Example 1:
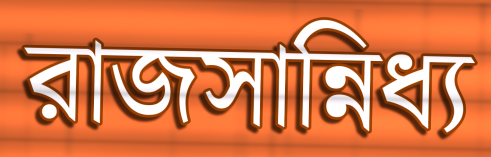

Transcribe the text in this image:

রাজসান্নিধ্য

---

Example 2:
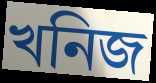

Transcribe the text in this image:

খনিজ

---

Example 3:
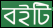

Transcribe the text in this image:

বইটি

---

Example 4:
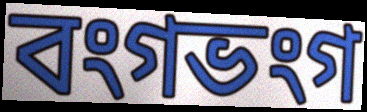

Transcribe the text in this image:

বংগভংগ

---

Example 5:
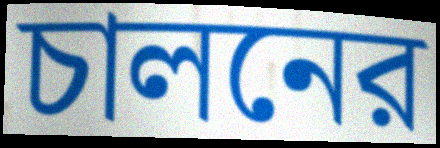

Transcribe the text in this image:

চালনের